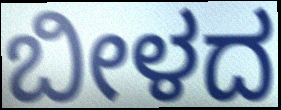
ಬೀಳದ